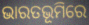
ଭାରତଭୂମିରେ